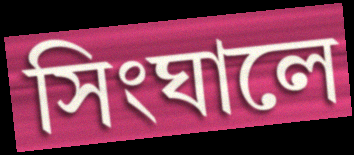
সিংঘালে